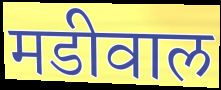
मडीवाल